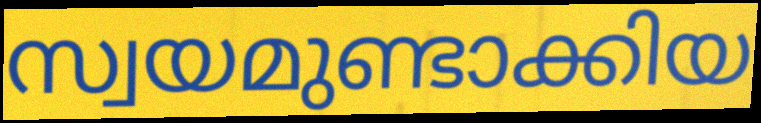
സ്വയമുണ്ടാക്കിയ